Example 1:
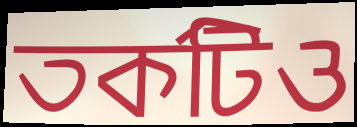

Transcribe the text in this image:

তর্কটিও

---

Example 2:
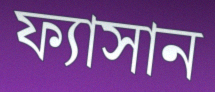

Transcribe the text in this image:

ফ্যাসান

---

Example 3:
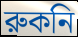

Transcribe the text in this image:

রুকনি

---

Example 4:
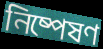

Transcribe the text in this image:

নিষ্পেষণ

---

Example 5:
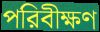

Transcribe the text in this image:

পরিবীক্ষণ